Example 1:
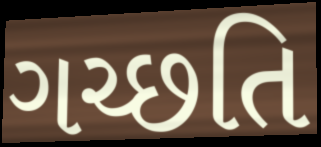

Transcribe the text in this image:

ગચ્છતિ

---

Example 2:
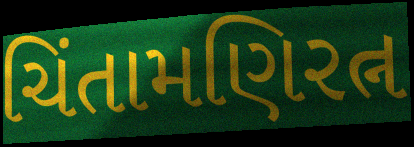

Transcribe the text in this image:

ચિંતામણિરત્ન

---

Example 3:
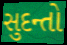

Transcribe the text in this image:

સુદન્તો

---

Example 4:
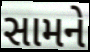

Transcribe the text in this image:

સામને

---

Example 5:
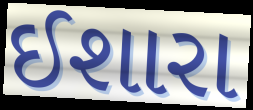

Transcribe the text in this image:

ઈશારા